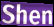
Shen